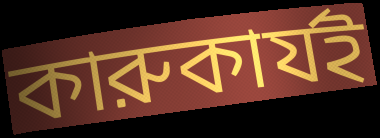
কারুকার্যই